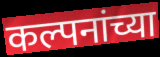
कल्पनांच्या